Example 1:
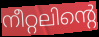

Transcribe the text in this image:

നീറ്റലിന്റെ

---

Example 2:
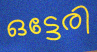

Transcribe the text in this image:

ഒട്ടേരി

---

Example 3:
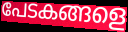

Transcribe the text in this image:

പേടകങ്ങളെ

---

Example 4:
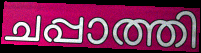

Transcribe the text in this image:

ചപ്പാത്തി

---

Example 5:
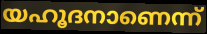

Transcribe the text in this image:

യഹൂദനാണെന്ന്